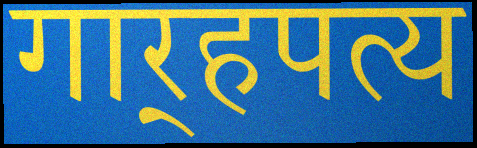
गार्हपत्य